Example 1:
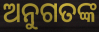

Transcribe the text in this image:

ଅନୁଗତଙ୍କ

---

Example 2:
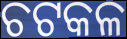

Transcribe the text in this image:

ଚଟକଳ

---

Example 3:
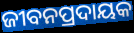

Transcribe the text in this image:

ଜୀବନପ୍ରଦାୟକ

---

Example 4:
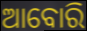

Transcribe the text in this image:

ଆବୋରି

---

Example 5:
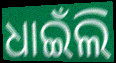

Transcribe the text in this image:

ଧାଇଁଲି